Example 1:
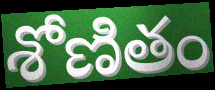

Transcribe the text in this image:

శోణితం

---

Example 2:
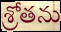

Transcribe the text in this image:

శ్రోతను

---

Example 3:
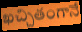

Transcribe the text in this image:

ఖచ్చితంగానే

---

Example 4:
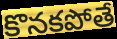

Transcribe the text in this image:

కొనకపోతే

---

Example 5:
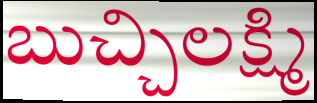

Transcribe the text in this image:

బుచ్చిలక్ష్మి